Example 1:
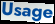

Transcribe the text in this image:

Usage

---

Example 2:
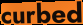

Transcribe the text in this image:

curbed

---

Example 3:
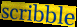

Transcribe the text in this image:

scribble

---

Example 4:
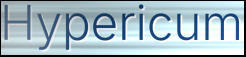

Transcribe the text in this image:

Hypericum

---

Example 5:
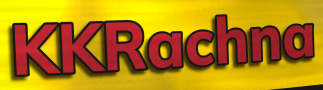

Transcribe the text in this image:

KKRachna